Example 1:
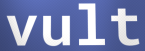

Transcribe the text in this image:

vult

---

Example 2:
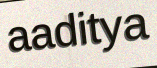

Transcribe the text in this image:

aaditya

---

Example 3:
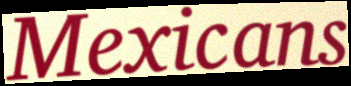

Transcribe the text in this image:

Mexicans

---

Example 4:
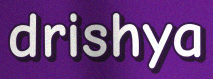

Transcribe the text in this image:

drishya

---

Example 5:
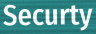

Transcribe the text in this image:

Securty